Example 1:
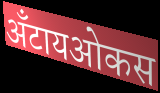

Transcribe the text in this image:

अँटायओकस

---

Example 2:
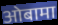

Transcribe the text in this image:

ओबामा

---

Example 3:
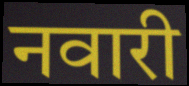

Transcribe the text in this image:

नवारी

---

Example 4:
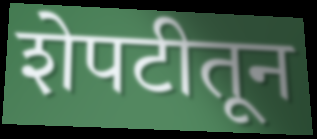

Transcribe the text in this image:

शेपटीतून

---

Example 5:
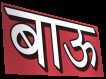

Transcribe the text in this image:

बाऊ